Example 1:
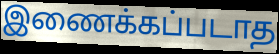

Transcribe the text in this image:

இணைக்கப்படாத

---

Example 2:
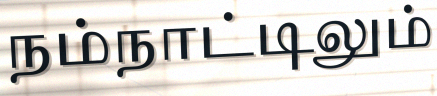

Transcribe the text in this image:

நம்நாட்டிலும்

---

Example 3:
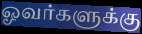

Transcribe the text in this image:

ஓவர்களுக்கு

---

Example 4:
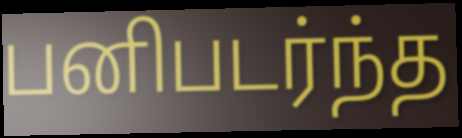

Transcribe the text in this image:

பனிபடர்ந்த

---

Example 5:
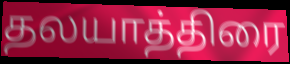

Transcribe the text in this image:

தலயாத்திரை